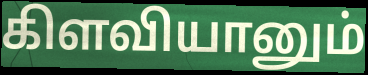
கிளவியானும்